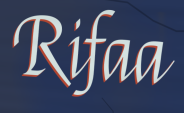
Rifaa